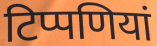
टिप्‍पणियां